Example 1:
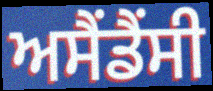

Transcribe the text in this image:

ਅਸੈਂਡੈਂਸੀ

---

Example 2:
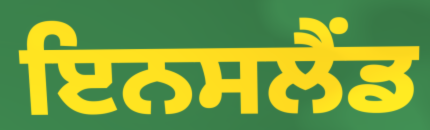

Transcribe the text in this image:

ਇਨਸਲੈਂਡ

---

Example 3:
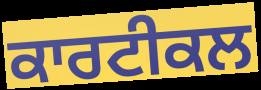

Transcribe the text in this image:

ਕਾਰਟੀਕਲ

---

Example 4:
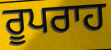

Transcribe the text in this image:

ਰੂਪਰਾਹ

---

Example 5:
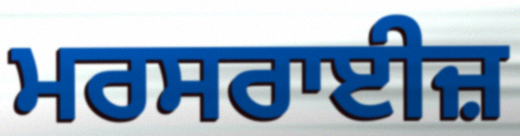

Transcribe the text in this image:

ਮਰਸਰਾਈਜ਼